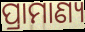
ପ୍ରାମାଣ୍ୟ